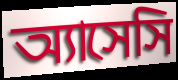
অ্যাসেসি